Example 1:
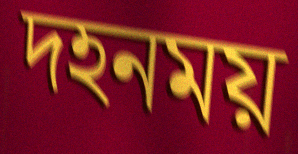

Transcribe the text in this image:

দহনময়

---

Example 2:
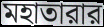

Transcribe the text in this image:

মহাতারার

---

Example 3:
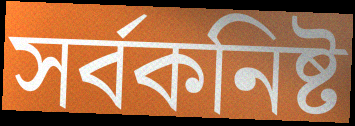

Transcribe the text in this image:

সর্বকনিষ্ট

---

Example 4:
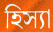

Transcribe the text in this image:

হিস্যা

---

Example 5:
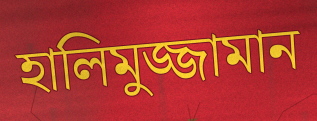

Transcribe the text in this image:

হালিমুজ্জামান